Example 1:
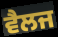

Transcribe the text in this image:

ਵੈਲਜ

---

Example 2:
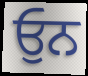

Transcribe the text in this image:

ਓੁਨ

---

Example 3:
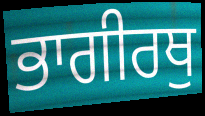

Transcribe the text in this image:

ਭਾਗੀਰਥੁ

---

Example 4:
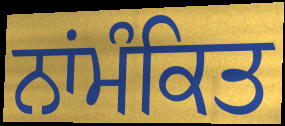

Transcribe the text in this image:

ਨਾਂਮੰਕਿਤ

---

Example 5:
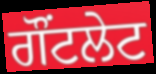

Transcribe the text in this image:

ਗੌਂਟਲੇਟ